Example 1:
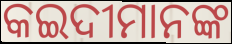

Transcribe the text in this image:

କଇଦୀମାନଙ୍କ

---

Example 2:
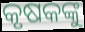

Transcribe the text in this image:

କୃଷକଙ୍କୁ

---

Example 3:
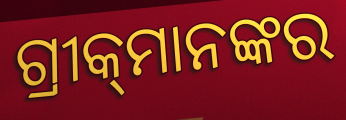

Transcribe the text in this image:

ଗ୍ରୀକ୍‌ମାନଙ୍କର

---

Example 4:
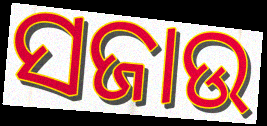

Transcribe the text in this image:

ସଜାଉ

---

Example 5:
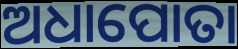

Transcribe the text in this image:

ଅଧାପୋତା